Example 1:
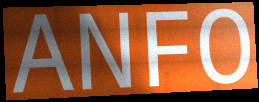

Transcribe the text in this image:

ANFO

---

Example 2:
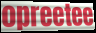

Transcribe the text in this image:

opreetee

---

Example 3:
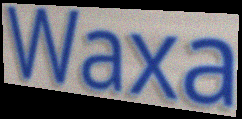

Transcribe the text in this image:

Waxa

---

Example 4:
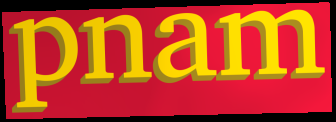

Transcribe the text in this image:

pnam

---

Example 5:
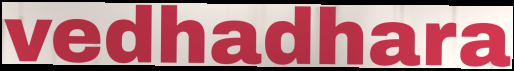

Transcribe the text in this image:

vedhadhara